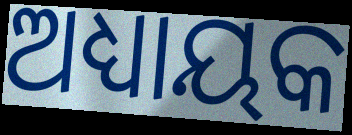
ଅଧ୍ୟାୟକ